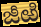
జీఱి